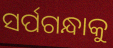
ସର୍ପଗନ୍ଧାକୁ